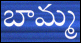
బామ్మ